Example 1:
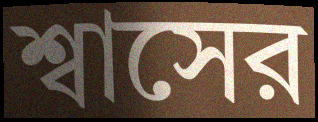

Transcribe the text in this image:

শ্বাসের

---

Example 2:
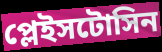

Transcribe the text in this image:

প্লেইসটোসিন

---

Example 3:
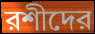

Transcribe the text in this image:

রশীদের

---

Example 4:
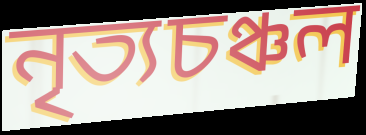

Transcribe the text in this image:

নৃত্যচঞ্চল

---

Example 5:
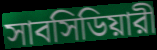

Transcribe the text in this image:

সাবসিডিয়ারী